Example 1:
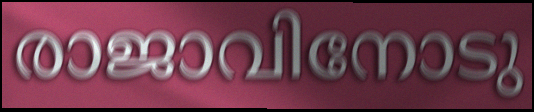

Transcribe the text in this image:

രാജാവിനോടു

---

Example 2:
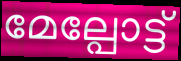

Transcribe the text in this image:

മേല്പോട്ട്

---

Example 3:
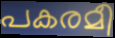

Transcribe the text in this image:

പകരമീ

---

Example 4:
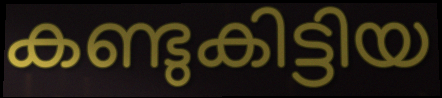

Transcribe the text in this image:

കണ്ടുകിട്ടിയ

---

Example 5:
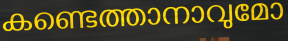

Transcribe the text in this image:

കണ്ടെത്താനാവുമോ